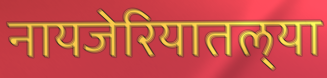
नायजेरियातल्या